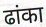
ढांका